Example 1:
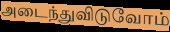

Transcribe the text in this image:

அடைந்துவிடுவோம்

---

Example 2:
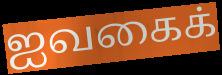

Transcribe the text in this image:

ஐவகைக்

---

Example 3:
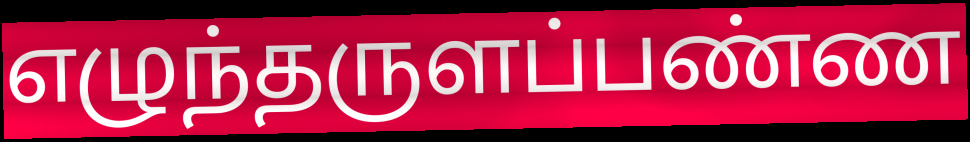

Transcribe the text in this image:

எழுந்தருளப்பண்ண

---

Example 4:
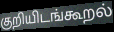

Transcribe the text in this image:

குறியிடங்கூறல்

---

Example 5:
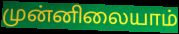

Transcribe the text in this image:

முன்னிலையாம்